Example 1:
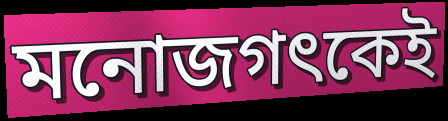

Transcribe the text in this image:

মনোজগৎকেই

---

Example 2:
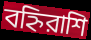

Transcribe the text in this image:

বহ্নিরাশি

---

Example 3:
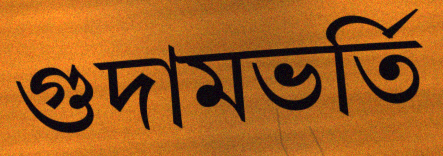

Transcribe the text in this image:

গুদামভর্তি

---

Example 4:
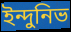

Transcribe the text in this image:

ইন্দুনিভ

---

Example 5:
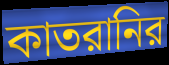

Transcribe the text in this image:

কাতরানির